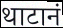
थाटानं